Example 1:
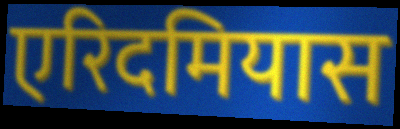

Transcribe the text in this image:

एरिदमियास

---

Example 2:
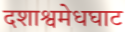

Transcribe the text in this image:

दशाश्वमेधघाट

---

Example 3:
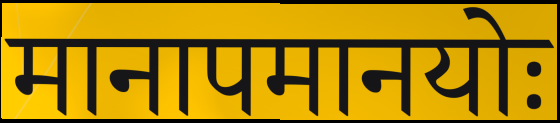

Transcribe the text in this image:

मानापमानयोः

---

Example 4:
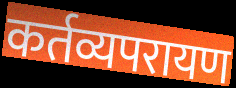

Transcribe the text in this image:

कर्तव्यपरायण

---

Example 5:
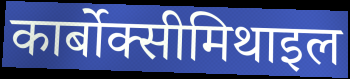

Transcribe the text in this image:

कार्बोक्सीमिथाइल